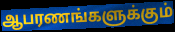
ஆபரணங்களுக்கும்